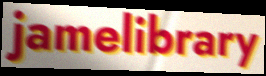
jamelibrary